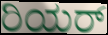
ರಿಯರ್